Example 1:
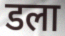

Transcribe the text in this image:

डला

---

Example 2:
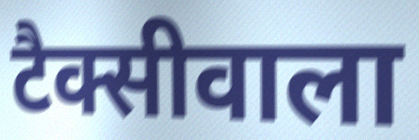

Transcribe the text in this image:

टैक्सीवाला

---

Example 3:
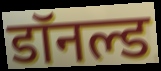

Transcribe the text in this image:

डॉनल्ड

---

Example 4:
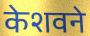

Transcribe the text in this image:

केशवने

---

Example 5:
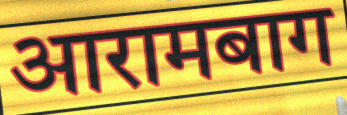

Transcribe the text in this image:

आरामबाग